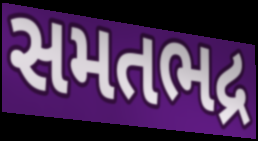
સમતભદ્ર